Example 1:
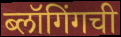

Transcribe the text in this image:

ब्लॉगिंगची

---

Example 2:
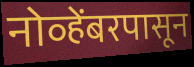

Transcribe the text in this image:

नोव्हेंबरपासून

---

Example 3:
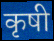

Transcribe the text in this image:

कृषी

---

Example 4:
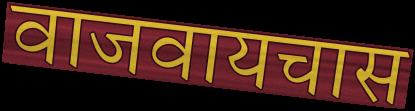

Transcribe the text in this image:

वाजवायचास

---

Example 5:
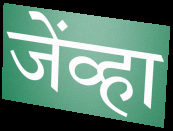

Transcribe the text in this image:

जेंव्हा